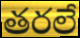
తరలే